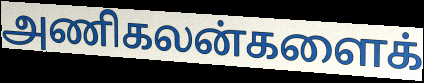
அணிகலன்களைக்